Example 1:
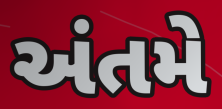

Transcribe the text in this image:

અંતમે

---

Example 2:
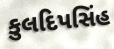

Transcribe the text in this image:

કુલદિપસિંહ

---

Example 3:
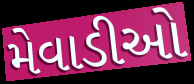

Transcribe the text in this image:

મેવાડીઓ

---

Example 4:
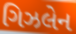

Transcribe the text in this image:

ગિઝલેન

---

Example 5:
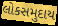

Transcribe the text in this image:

લોકસમુદાય